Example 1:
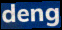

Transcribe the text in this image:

deng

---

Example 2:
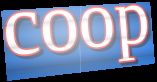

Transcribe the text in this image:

coop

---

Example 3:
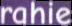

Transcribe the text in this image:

rahie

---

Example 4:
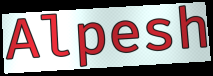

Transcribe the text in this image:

Alpesh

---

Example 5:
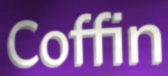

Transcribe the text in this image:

Coffin